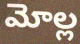
మోల్ల